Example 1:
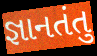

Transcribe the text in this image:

જ્ઞાનતંતુ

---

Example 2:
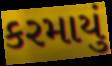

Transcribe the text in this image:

કરમાયું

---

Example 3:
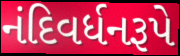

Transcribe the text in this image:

નંદિવર્ધનરૂપે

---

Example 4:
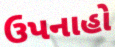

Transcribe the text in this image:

ઉપનાહો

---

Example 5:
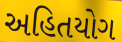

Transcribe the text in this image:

અહિતયોગ